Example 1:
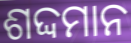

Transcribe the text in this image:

ଶଦ୍ଦମାନ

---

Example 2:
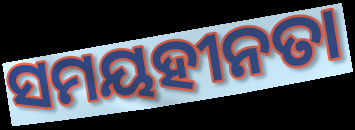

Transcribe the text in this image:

ସମୟହୀନତା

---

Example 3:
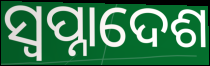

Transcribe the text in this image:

ସ୍ବପ୍ନାଦେଶ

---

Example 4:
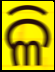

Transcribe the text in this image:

ଳି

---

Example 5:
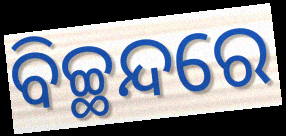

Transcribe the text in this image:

ବିଚ୍ଛନ୍ଦରେ